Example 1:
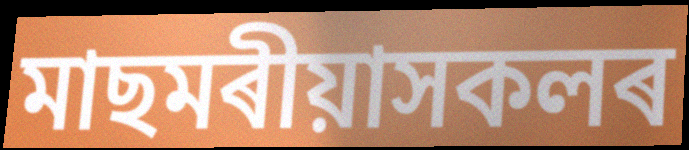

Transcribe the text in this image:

মাছমৰীয়াসকলৰ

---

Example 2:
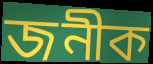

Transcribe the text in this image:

জনীক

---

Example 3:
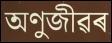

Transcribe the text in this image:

অণুজীৱৰ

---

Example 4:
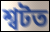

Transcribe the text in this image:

শ্বটত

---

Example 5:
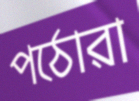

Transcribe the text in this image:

পঠোৱা